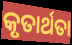
କୃତାର୍ଥତା